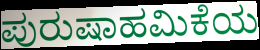
ಪುರುಷಾಹಮಿಕೆಯ